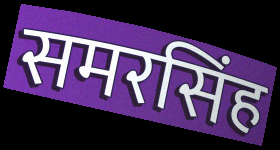
समरसिंह